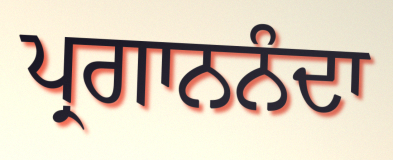
ਪ੍ਰਗਾਨਨੰਦਾ